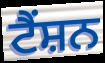
ਟੈਂਸ਼ਨ